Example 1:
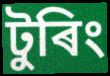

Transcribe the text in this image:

টুৰিং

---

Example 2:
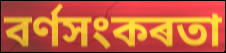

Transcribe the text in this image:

বৰ্ণসংকৰতা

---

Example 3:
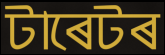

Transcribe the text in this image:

টাৰেটৰ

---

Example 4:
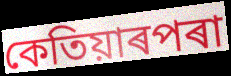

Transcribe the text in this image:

কেতিয়াৰপৰা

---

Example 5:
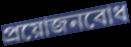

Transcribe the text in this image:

প্ৰয়োজনবোধ